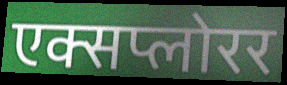
एक्सप्लोरर